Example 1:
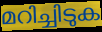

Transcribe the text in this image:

മറിച്ചിടുക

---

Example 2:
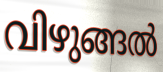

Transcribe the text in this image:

വിഴുങ്ങൽ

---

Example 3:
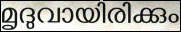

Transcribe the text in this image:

മൃദുവായിരിക്കും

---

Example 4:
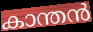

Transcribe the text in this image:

കാന്തൻ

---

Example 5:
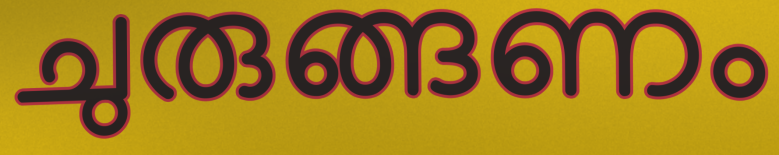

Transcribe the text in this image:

ചുരുങ്ങണം